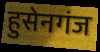
हुसेनगंज